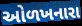
ઓળખનારા